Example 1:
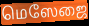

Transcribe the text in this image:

மெஸேஜை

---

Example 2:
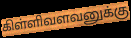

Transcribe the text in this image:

கிள்ளிவளவனுக்கு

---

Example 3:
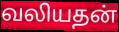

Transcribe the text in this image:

வலியதன்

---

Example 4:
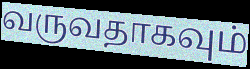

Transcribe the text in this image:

வருவதாகவும்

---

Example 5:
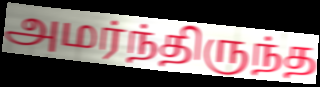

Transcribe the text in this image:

அமர்ந்திருந்த